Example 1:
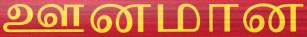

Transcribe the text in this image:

ஊனமான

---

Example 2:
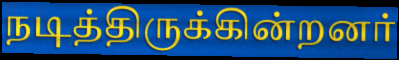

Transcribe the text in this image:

நடித்திருக்கின்றனர்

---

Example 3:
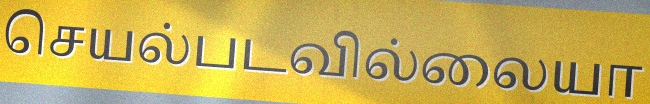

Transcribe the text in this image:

செயல்படவில்லையா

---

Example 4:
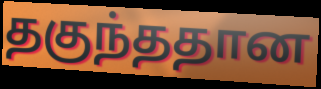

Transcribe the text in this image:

தகுந்ததான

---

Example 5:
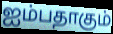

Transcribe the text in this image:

ஐம்பதாகும்